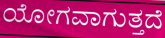
ಯೋಗವಾಗುತ್ತದೆ